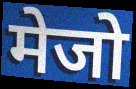
मेजो